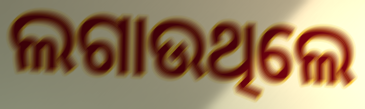
ଲଗାଉଥିଲେ